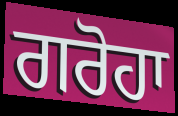
ਗਰੋਹਾ